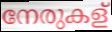
നേരുകള്